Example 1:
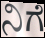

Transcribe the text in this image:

ನಿಗೆ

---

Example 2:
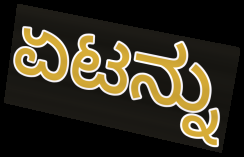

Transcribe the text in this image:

ಏಟನ್ನು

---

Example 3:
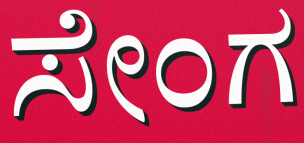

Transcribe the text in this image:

ಸೇಂಗ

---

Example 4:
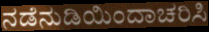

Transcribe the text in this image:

ನಡೆನುಡಿಯಿಂದಾಚರಿಸಿ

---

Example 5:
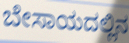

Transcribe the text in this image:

ಬೇಸಾಯದಲ್ಲಿನ